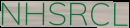
NHSRCL